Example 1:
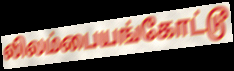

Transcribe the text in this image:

லிலம்பையங்கோட்டூ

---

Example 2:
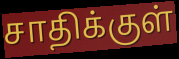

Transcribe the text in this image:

சாதிக்குள்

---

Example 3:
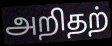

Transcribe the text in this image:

அறிதற்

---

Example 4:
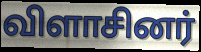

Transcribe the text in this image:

விளாசினர்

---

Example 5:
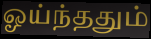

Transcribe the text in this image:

ஓய்ந்ததும்